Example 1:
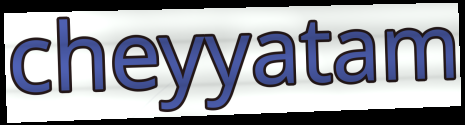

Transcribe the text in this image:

cheyyatam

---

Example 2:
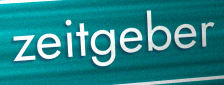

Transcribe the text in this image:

zeitgeber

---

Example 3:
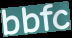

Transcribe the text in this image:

bbfc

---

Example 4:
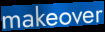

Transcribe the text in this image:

makeover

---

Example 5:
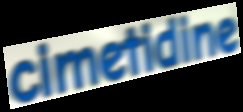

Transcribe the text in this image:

cimetidine